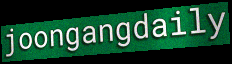
joongangdaily